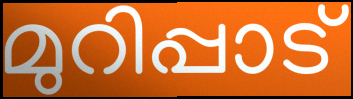
മുറിപ്പാട്